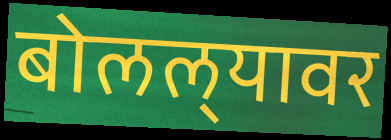
बोलल्यावर